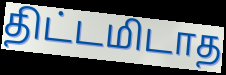
திட்டமிடாத